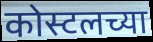
कोस्टलच्या